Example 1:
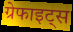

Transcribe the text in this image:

ग्रेफाइट्स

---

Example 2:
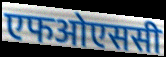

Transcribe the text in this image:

एफओएससी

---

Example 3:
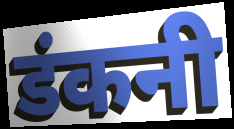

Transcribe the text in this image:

डंकनी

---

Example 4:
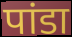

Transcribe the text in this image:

पांडा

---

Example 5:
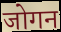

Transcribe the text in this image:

जोगन